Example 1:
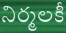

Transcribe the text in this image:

నిర్మలకీ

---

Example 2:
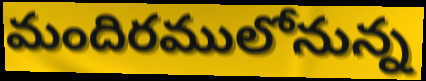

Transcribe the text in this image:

మందిరములోనున్న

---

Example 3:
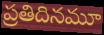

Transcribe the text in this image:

ప్రతిదినమూ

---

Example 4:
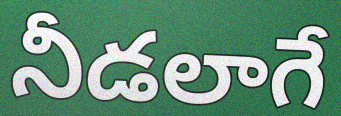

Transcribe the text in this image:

నీడలాగే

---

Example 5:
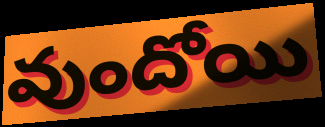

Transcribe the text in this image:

వుందోయి